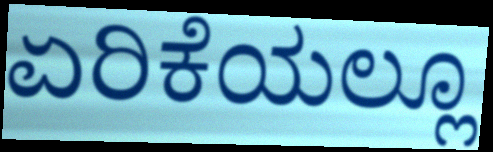
ಏರಿಕೆಯಲ್ಲೂ